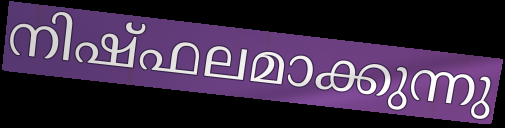
നിഷ്ഫലമാക്കുന്നു